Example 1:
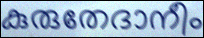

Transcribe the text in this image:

കുരുതേദാനീം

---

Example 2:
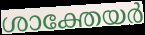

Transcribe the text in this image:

ശാക്തേയർ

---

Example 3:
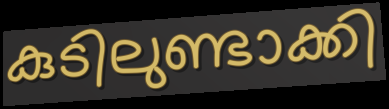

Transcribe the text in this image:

കുടിലുണ്ടാക്കി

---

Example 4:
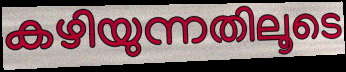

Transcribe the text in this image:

കഴിയുന്നതിലൂടെ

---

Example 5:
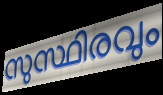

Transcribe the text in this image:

സുസ്ഥിരവും